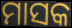
ମାସକ